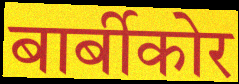
बार्बीकोर